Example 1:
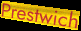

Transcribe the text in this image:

Prestwich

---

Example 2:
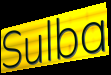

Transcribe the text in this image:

Sulba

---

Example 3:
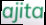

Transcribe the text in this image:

ajita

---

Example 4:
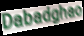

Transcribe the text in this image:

Dabadghao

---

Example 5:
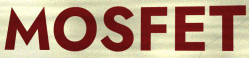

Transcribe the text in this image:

MOSFET